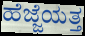
ಹೆಜ್ಜೆಯತ್ತ